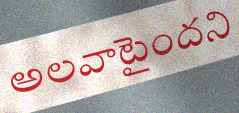
అలవాటైందని